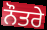
ਨੌਤਰੇ